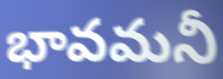
భావమనీ